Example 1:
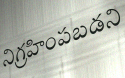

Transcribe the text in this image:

నిగ్రహింపబడని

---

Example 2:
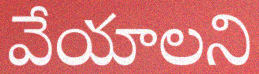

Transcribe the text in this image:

వేయాలని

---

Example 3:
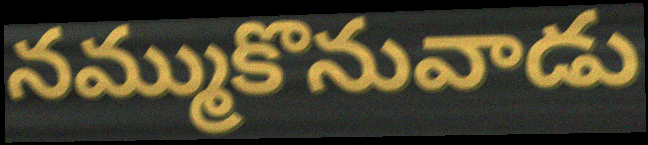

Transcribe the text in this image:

నమ్ముకొనువాడు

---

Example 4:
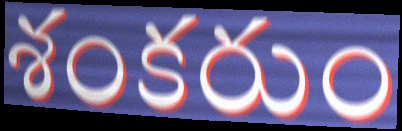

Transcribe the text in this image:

శంకరుం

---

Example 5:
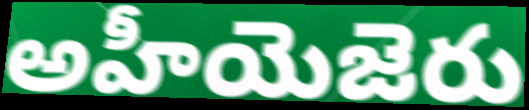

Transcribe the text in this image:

అహీయెజెరు